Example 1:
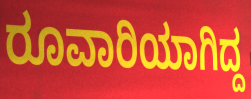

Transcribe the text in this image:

ರೂವಾರಿಯಾಗಿದ್ದ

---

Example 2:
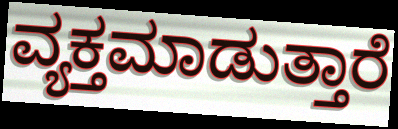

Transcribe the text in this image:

ವ್ಯಕ್ತಮಾಡುತ್ತಾರೆ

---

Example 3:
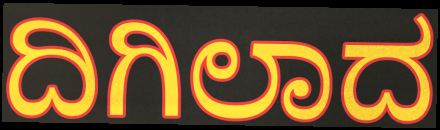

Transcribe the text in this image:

ದಿಗಿಲಾದ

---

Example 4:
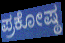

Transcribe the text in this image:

ಪ್ರಕೋಷ್ಠ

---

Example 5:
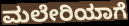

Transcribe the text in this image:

ಮಲೇರಿಯಾಗೆ